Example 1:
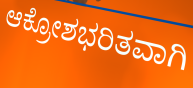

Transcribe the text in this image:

ಆಕ್ರೋಶಭರಿತವಾಗಿ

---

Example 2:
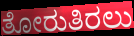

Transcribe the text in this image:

ತೋರುತಿರಲು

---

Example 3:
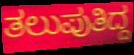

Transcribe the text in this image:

ತಲುಪುತಿದ್ದ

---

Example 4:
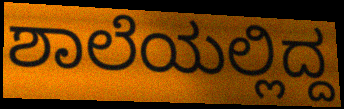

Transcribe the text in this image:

ಶಾಲೆಯಲ್ಲಿದ್ದ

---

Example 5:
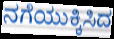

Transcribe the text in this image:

ನಗೆಯುಕ್ಕಿಸಿದ